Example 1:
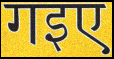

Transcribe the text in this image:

गइए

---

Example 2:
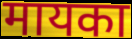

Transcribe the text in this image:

मायका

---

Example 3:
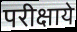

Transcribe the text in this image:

परीक्षाये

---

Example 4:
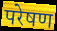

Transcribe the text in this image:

परेषण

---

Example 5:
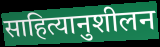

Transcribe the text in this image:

साहित्यानुशीलन